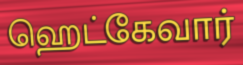
ஹெட்கேவார்